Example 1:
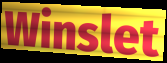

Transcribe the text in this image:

Winslet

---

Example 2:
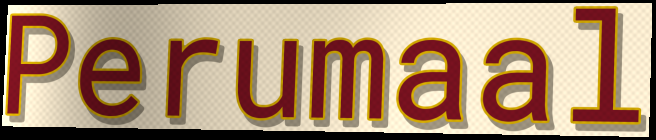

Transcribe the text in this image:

Perumaal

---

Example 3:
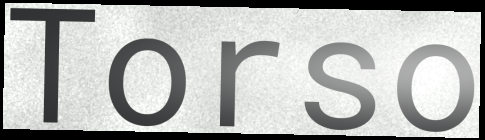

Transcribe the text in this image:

Torso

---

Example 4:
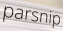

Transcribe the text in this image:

parsnip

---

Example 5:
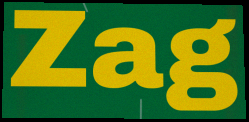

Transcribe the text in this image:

Zag